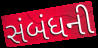
સંબંધની